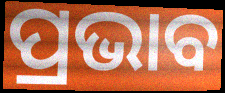
ପ୍ରଭାବ